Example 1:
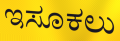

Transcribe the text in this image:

ಇಸೂಕಲು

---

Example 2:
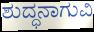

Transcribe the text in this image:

ಶುದ್ಧನಾಗುವಿ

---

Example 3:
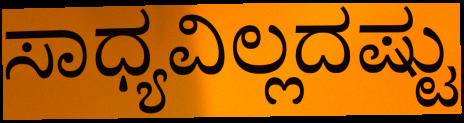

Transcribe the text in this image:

ಸಾಧ್ಯವಿಲ್ಲದಷ್ಟು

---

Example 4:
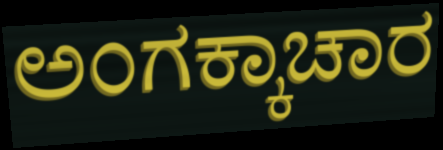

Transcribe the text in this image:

ಅಂಗಕ್ಕಾಚಾರ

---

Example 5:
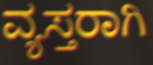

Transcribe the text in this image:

ವ್ಯಸ್ತರಾಗಿ